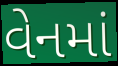
વેનમાં